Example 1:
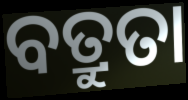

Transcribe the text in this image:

ବତ୍ରୁତା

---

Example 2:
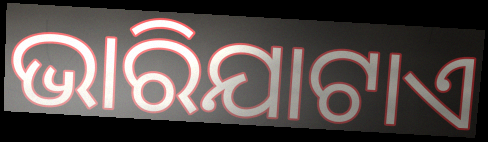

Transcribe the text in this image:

ଭାରିଯାଟାଏ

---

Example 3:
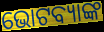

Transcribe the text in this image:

ଭୋଟବ୍ୟାଙ୍କ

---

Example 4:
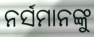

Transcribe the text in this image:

ନର୍ସମାନଙ୍କୁ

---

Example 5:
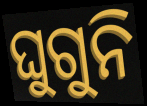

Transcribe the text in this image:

ଘୁଗୁନି